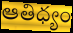
ఆతిధ్యం